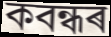
কবন্ধৰ